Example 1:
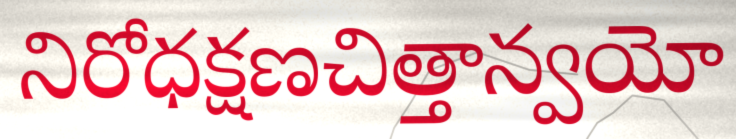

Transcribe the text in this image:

నిరోధక్షణచిత్తాన్వయో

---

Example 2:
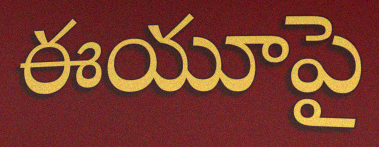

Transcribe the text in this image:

ఈయూపై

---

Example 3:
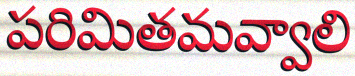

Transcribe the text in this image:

పరిమితమవ్వాలి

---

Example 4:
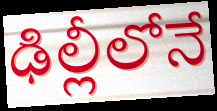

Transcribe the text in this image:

ఢిల్లీలోనే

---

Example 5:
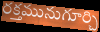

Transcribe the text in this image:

రక్తమునుగూర్చి